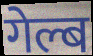
गेल्ब